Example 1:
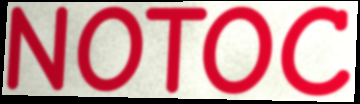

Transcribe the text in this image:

NOTOC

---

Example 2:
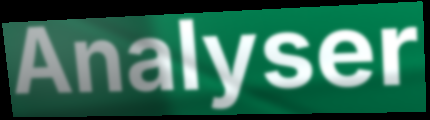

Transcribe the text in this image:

Analyser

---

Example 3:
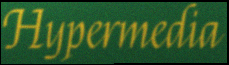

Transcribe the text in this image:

Hypermedia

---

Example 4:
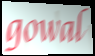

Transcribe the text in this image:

gowal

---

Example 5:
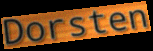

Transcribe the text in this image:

Dorsten